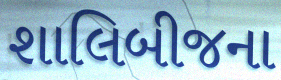
શાલિબીજના